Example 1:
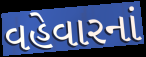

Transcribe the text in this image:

વહેવારનાં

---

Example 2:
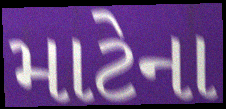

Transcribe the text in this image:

માટેના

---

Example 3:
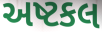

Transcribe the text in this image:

અષ્ટકલ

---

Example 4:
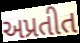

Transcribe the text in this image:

અપ્રતીત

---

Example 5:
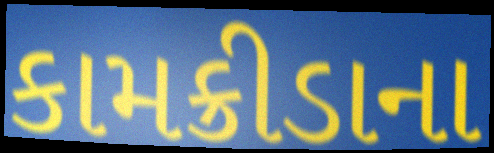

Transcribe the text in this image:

કામક્રીડાના